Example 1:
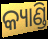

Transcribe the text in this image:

କ୍ୟାଣ୍ଡି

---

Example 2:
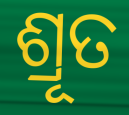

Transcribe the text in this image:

ଶ୍ରୂତ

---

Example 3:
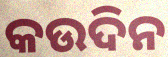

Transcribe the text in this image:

କଉଦିନ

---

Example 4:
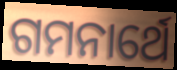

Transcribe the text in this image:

ଗମନାର୍ଥେ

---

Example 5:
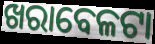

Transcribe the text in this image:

ଖରାବେଳଟା